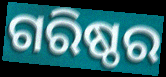
ଗରିଷ୍ଠର